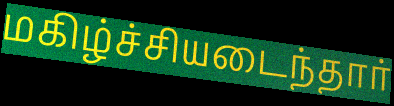
மகிழ்ச்சியடைந்தார்